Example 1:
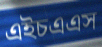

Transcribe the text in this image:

এইচএএস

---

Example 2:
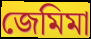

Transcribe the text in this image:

জেমিমা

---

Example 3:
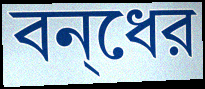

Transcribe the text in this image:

বন্‌ধের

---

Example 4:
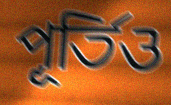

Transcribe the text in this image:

পূর্তিও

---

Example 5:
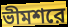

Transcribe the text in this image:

ভীমশরে